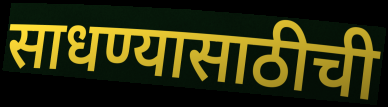
साधण्यासाठीची